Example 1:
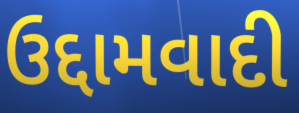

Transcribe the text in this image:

ઉદ્દામવાદી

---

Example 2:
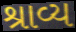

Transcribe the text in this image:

શ્રાવ્ય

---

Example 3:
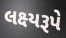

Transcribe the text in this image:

લક્ષ્યરૂપે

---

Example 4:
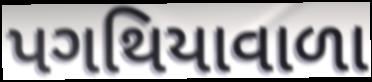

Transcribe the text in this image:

પગથિયાવાળા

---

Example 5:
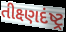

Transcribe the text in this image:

તીક્ષ્ણદંષ્ટ્ર